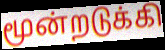
மூன்றடுக்கி